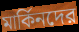
মার্কিনদের